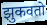
झुकवतो